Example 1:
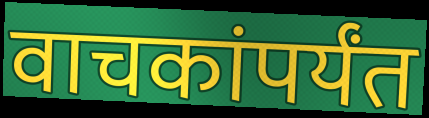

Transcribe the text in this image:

वाचकांपर्यंत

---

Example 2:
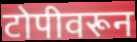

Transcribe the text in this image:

टोपीवरून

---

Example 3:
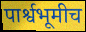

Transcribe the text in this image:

पार्श्वभूमीच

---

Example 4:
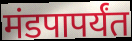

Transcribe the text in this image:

मंडपापर्यंत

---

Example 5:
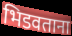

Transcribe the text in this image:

भिडवताना